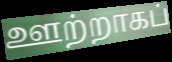
ஊற்றாகப்